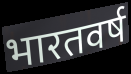
भारतवर्ष